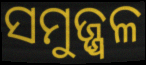
ସମୁଜ୍ଜ୍ୱଳ